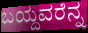
ಬಯ್ದವರೆನ್ನ